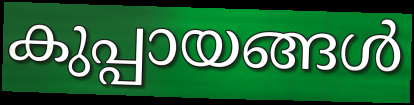
കുപ്പായങ്ങൾ